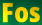
Fos